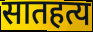
सातहत्य